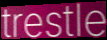
trestle